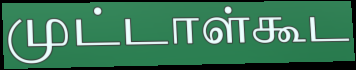
முட்டாள்கூட